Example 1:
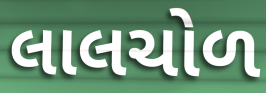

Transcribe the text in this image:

લાલચોળ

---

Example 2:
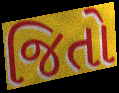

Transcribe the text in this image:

જિતો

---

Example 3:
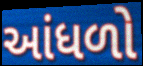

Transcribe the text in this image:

આંધળો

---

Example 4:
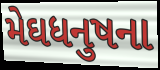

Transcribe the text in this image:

મેઘધનુષના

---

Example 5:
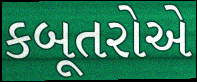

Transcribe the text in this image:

કબૂતરોએ